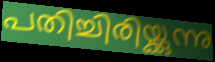
പതിച്ചിരിയ്ക്കുന്നു